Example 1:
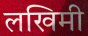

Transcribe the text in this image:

लखिमी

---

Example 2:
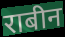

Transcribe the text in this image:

राबीन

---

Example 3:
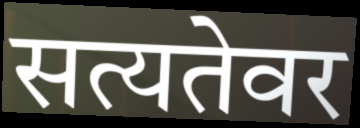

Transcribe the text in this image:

सत्यतेवर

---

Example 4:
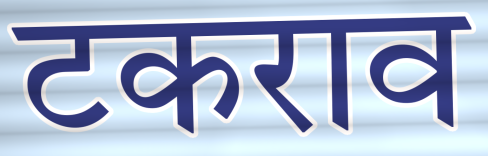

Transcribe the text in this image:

टकराव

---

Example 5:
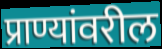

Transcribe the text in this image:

प्राण्यांवरील